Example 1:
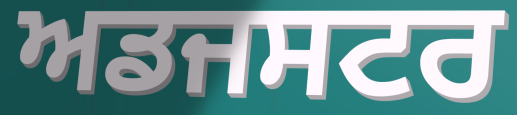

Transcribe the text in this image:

ਅਡਜਸਟਰ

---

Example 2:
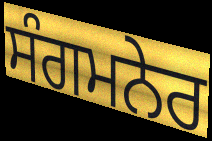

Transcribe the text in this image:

ਸੰਗਮਨੇਰ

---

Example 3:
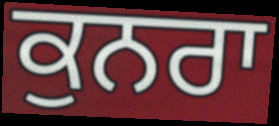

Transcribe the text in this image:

ਕੁਨਰਾ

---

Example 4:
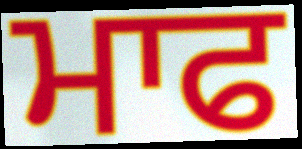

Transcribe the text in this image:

ਮਾਫ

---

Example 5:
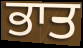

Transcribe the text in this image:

ਭਾਤ